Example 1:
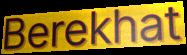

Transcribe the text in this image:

Berekhat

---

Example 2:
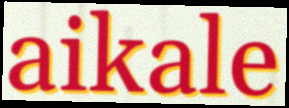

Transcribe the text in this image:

aikale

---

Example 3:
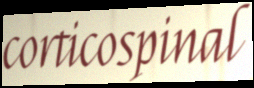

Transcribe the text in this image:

corticospinal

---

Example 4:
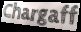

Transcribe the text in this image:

Chargaff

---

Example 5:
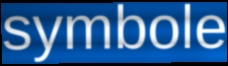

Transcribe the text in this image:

symbole